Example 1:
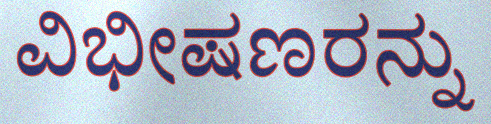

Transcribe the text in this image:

ವಿಭೀಷಣರನ್ನು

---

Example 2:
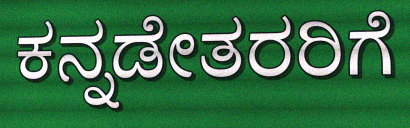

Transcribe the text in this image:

ಕನ್ನಡೇತರರಿಗೆ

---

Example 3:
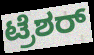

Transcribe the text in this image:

ಟ್ರೆಶರ್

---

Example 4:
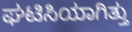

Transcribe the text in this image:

ಘಟಿಸಿಯಾಗಿತ್ತು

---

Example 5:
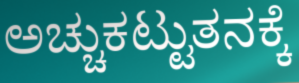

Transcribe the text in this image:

ಅಚ್ಚುಕಟ್ಟುತನಕ್ಕೆ